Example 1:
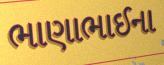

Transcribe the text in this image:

ભાણાભાઈના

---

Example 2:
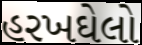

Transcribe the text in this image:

હરખઘેલો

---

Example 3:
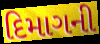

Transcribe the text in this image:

દિમાગની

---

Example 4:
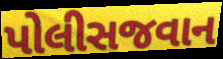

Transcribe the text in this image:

પોલીસજવાન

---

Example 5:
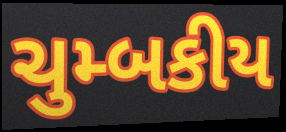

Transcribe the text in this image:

ચુમ્બકીય